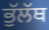
ਭੁੱਲੱਥ